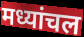
मध्यांचल